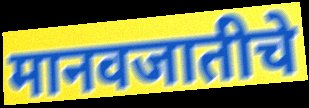
मानवजातीचे